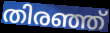
തിരഞ്ഞ്